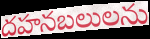
దహనబలులను